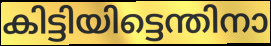
കിട്ടിയിട്ടെന്തിനാ